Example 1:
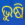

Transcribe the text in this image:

ଭୁଷି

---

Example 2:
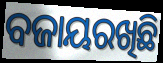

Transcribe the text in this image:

ବଜାୟରଖିଛି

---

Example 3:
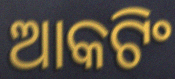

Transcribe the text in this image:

ଆକଟିଂ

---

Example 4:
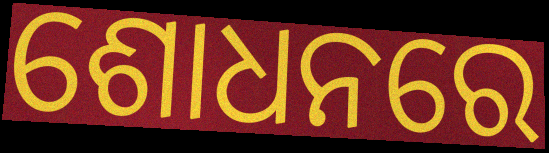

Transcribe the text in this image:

ଶୋଧନରେ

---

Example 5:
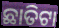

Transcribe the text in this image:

ଛାତିଟା